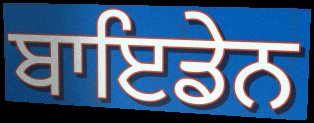
ਬਾਇਡੇਨ